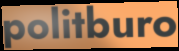
politburo